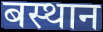
बस्थान